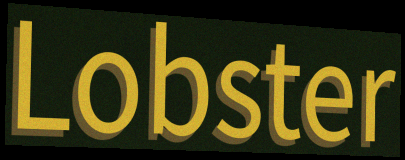
Lobster